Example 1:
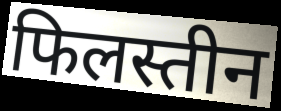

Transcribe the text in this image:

फिलस्तीन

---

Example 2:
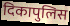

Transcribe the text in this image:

दिकापुलिस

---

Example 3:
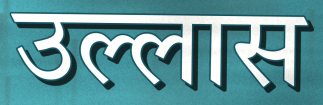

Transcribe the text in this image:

उल्‍लास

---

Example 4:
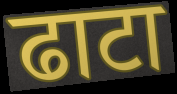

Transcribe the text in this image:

ढाटा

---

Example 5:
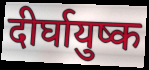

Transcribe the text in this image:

दीर्घायुष्क